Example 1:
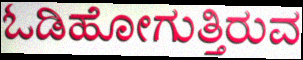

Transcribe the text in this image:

ಓಡಿಹೋಗುತ್ತಿರುವ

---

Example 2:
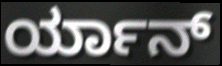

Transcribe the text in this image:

ರ್ಯಾನ್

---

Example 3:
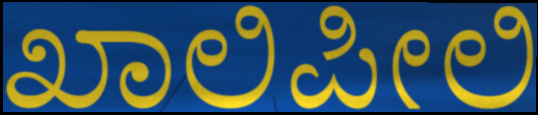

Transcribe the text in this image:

ಖಾಲಿಪೀಲಿ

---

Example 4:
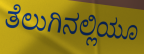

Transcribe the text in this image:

ತೆಲುಗಿನಲ್ಲಿಯೂ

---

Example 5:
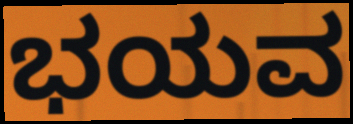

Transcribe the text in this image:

ಭಯವ